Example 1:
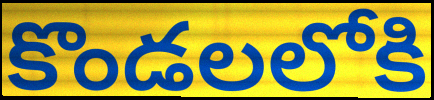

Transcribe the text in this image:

కొండలలోకి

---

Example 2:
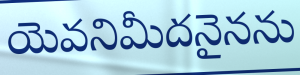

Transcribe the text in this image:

యెవనిమీదనైనను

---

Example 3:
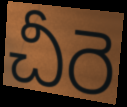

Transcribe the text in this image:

చీరె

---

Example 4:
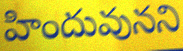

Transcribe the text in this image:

హిందువునని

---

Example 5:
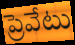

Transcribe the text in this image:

ప్రెవేటు